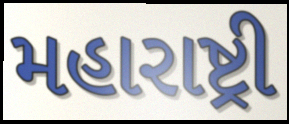
મહારાષ્ટ્રી